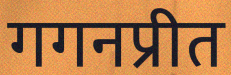
गगनप्रीत